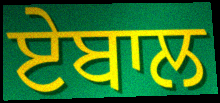
ਏਬਾਲ